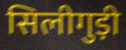
सिलीगुड़ी